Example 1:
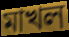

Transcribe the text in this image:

মাখল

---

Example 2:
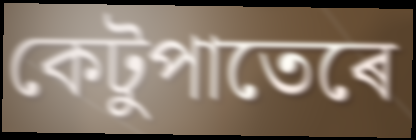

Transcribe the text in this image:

কেটুপাতেৰে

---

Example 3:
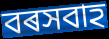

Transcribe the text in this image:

বৰসবাহ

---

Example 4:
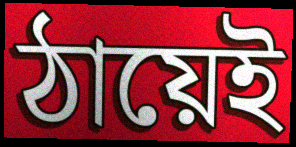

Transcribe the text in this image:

ঠায়েই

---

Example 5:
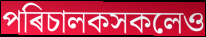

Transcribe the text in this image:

পৰিচালকসকলেও